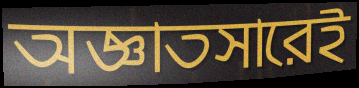
অজ্ঞাতসারেই